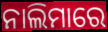
ନାଲିମାରେ